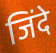
जिंदे